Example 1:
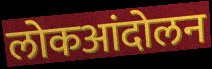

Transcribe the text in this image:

लोकआंदोलन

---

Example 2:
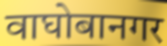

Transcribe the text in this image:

वाघोबानगर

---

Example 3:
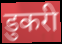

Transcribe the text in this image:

डुकरी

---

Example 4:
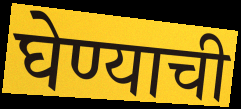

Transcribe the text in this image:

घेण्याची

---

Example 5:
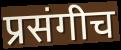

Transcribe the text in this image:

प्रसंगीच